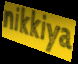
nikkiya